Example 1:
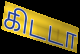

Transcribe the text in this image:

கிடடா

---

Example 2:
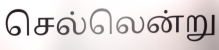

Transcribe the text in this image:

செல்லென்று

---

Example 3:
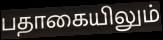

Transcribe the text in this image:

பதாகையிலும்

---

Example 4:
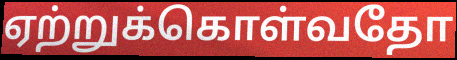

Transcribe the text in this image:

ஏற்றுக்கொள்வதோ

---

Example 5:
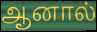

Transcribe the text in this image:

ஆனால்